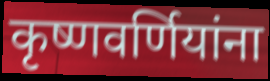
कृष्णवर्णियांना